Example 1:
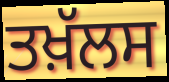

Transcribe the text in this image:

ਤਖ਼ੱਲਸ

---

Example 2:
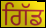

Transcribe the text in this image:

ਗਿੱਡ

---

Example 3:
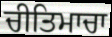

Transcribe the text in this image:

ਚੀਤਿਮਾਚਾ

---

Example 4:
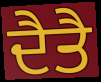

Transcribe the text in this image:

ਦੈਤੈ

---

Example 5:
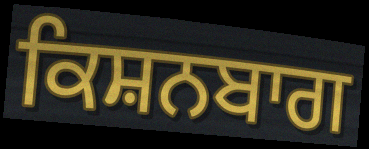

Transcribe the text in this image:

ਕਿਸ਼ਨਬਾਗ